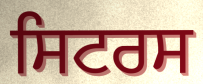
ਸਿਟਰਸ